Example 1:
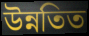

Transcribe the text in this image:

উন্নতিত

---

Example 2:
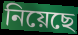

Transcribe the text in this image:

নিয়েছে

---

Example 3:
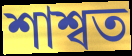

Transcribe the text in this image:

শাশ্বত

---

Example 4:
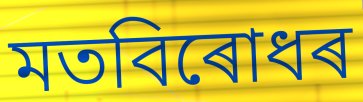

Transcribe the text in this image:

মতবিৰোধৰ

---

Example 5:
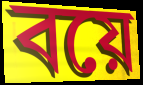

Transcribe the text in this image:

বয়ে